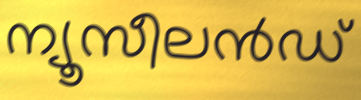
ന്യൂസീലൻഡ്